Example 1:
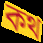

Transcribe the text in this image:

কথ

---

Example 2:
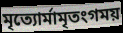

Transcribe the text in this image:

মৃত্যোর্মামৃতংগময়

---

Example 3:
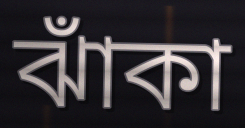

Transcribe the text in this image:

ঝাঁকা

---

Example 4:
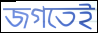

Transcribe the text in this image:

জগতেই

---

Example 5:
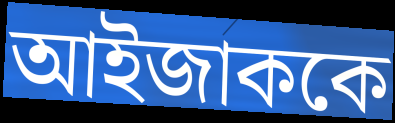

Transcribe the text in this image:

আইজাককে